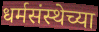
धर्मसंस्थेच्या